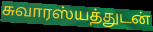
சுவாரஸ்யத்துடன்